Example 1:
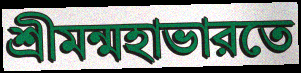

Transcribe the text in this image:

শ্রীমন্মহাভারতে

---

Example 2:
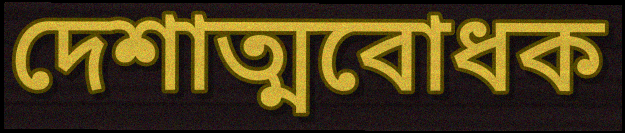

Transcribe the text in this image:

দেশাত্মবোধক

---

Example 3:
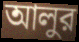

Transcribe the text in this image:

আলুর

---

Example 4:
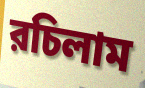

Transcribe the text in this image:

রচিলাম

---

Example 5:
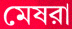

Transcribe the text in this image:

মেষরা